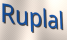
Ruplal